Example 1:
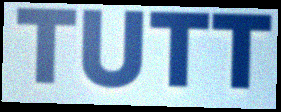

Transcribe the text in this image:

TUTT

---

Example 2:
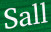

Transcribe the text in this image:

Sall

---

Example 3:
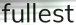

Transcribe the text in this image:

fullest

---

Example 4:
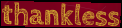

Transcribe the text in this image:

thankless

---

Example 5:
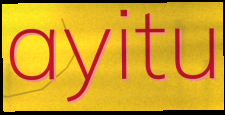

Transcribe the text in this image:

ayitu